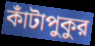
কাঁটাপুকুর